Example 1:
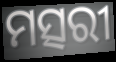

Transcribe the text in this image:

ମତ୍ସରୀ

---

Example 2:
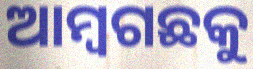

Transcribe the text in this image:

ଆମ୍ବଗଛକୁ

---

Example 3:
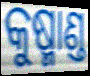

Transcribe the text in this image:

କୁଷ୍ମାଣ୍ଡ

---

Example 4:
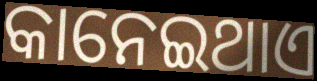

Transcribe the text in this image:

କାନେଇଥାଏ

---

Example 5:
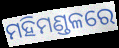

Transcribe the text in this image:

ମହିମଣ୍ଡଳରେ